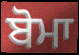
ਬੋਮਾ